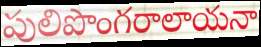
పులిపొంగరాలాయనా